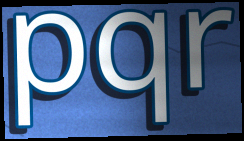
pqr